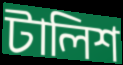
টালিশ